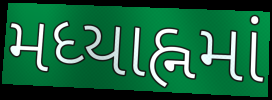
મધ્યાહ્નમાં